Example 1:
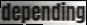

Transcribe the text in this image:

depending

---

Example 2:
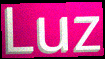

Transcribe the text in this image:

Luz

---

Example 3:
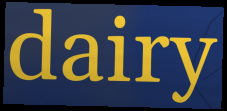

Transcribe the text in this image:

dairy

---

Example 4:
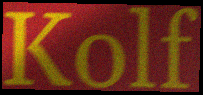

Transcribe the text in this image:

Kolf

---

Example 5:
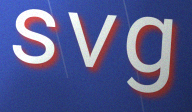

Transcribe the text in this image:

svg